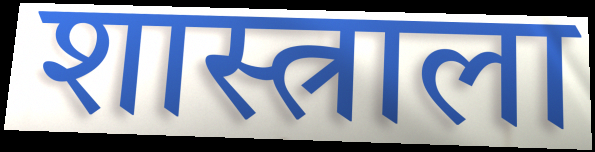
शास्त्राला